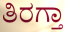
ತಿರಗ್ತಾ